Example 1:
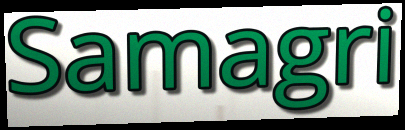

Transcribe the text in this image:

Samagri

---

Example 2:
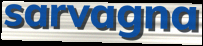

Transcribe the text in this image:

sarvagna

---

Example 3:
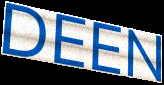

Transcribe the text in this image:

DEEN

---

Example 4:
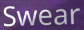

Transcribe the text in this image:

Swear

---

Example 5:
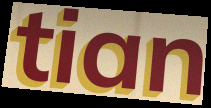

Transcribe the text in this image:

tian